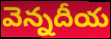
వెన్నదీయ